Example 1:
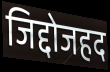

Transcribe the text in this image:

जिद्दोजहद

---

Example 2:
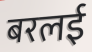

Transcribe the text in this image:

बरलई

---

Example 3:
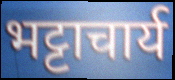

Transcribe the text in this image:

भट्टाचार्य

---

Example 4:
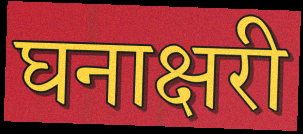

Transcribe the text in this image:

घनाक्षरी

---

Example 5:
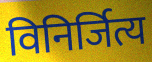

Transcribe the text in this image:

विनिर्जित्य